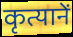
कृत्यानें